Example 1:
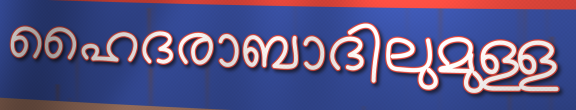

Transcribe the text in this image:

ഹൈദരാബാദിലുമുള്ള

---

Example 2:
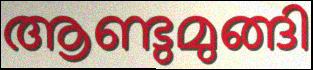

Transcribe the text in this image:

ആണ്ടുമുങ്ങി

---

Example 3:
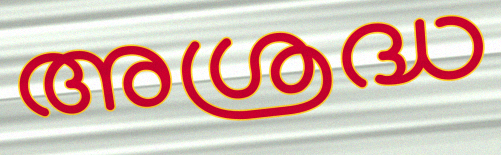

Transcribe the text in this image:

അശ്രദ്ധ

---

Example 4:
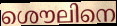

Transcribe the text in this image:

ശൌലിനെ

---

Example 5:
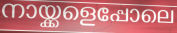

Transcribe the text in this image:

നായ്ക്കളെപ്പോലെ